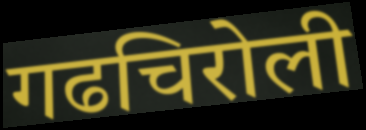
गढचिरोली